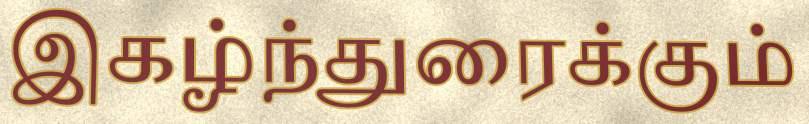
இகழ்ந்துரைக்கும்